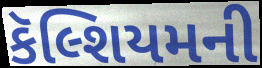
કૅલ્શિયમની